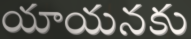
యాయనకు